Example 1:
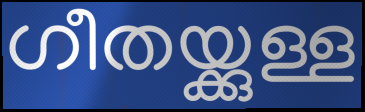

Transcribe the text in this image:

ഗീതയ്ക്കുള്ള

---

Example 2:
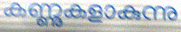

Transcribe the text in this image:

കണ്ണുകളാകുന്നു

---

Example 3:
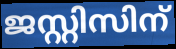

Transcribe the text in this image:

ജസ്റ്റിസിന്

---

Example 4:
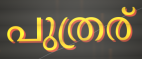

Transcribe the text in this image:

പുത്രര്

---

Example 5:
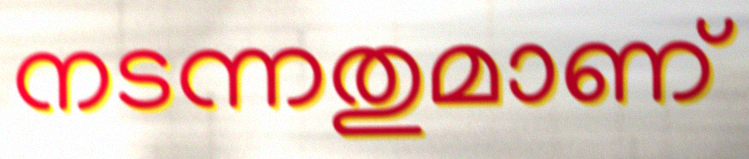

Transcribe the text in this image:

നടന്നതുമാണ്